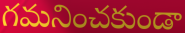
గమనించకుండా